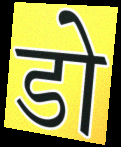
डो